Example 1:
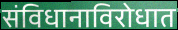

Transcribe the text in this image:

संविधानाविरोधात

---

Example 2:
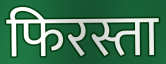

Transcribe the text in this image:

फिरस्ता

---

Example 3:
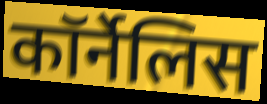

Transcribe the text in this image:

कॉर्नेलिस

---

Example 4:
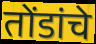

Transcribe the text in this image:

तोंडांचे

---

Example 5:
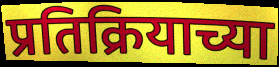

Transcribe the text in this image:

प्रतिक्रियाच्या